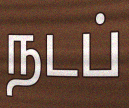
நடப்